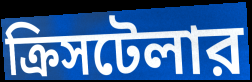
ক্রিসটেলার